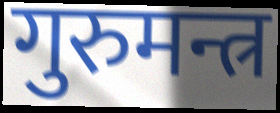
गुरुमन्त्र